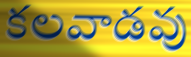
కలవాడవు